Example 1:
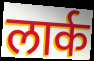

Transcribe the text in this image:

लार्क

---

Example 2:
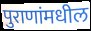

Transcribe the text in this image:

पुराणांमधील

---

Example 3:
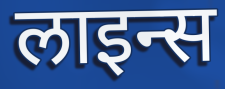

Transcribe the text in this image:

लाइन्स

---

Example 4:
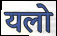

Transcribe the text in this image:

यलो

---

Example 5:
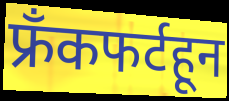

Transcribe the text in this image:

फ्रँकफर्टहून